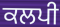
ਕਲਪੀ